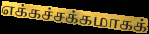
எக்கச்சக்கமாகக்